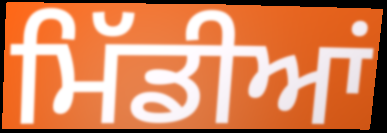
ਮਿੱਡੀਆਂ